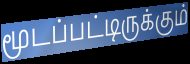
மூடப்பட்டிருக்கும்